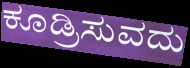
ಕೂಡ್ರಿಸುವದು